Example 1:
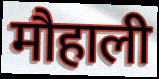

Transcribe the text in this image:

मौहाली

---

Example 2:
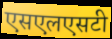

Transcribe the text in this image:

एसएलएसटी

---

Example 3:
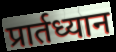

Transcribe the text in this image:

प्रार्तध्यान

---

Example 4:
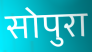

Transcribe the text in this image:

सोपुरा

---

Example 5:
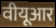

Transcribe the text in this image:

वीयूआर